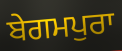
ਬੇਗਮਪੁਰਾ